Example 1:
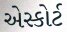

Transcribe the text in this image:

એસ્કોર્ટ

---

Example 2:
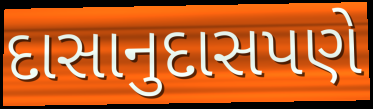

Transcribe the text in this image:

દાસાનુદાસપણે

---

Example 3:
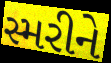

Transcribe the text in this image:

સ્મરીને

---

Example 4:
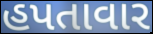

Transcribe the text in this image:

હપતાવાર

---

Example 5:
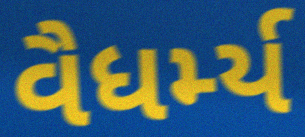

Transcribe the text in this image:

વૈધર્મ્ય